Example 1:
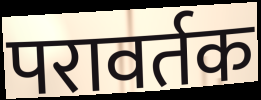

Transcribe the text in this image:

परावर्तक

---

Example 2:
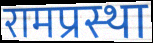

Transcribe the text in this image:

रामप्रस्था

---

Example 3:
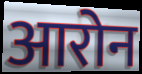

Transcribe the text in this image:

आरोन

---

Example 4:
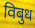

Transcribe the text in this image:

विबुध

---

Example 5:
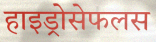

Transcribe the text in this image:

हाइड्रोसेफलस